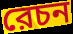
রেচন